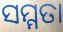
ସମ୍ମତା